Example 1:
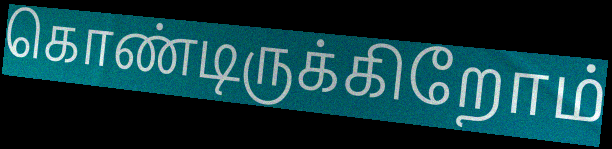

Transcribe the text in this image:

கொண்டிருக்கிறோம்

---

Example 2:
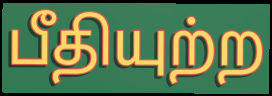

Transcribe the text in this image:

பீதியுற்ற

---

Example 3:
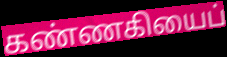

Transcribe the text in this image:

கண்ணகியைப்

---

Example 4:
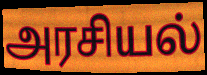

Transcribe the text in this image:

அரசியல்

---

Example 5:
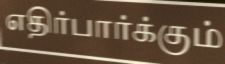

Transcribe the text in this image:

எதிர்பார்க்கும்